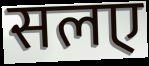
सलए